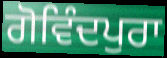
ਗੋਵਿੰਦਪੁਰਾ